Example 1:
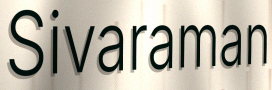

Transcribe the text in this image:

Sivaraman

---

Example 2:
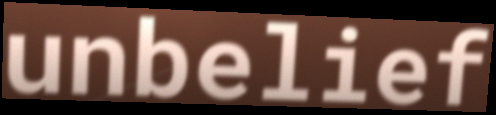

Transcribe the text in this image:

unbelief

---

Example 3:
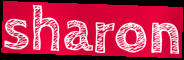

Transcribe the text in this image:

sharon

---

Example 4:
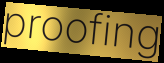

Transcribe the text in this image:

proofing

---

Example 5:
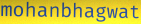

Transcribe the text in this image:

mohanbhagwat